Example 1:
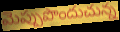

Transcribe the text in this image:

మెప్పుపొందుచున్న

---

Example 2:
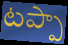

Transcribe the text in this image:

టప్పా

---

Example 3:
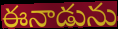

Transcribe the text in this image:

ఈనాడును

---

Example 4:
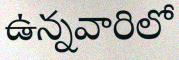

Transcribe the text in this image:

ఉన్నవారిలో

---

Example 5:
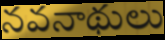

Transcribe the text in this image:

నవనాథులు